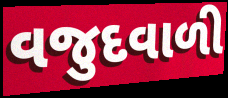
વજુદવાળી